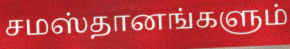
சமஸ்தானங்களும்